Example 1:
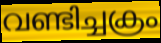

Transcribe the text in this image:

വണ്ടിച്ചക്രം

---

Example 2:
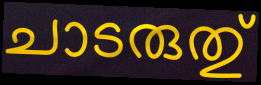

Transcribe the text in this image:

ചാടരുതു്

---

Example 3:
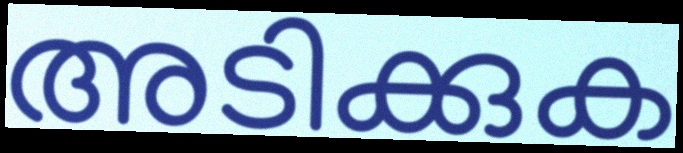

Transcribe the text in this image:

അടിക്കുക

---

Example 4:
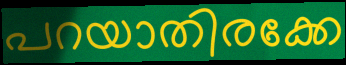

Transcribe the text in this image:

പറയാതിരക്കേ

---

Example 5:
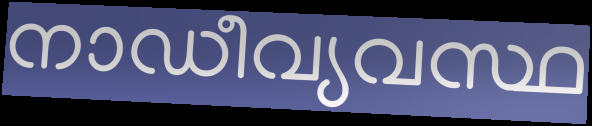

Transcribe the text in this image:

നാഡീവ്യവസ്ഥ